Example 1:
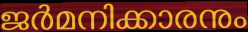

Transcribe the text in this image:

ജർമനിക്കാരനും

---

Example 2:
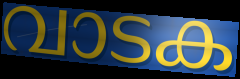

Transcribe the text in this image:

വാടക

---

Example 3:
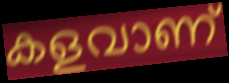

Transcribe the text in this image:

കളവാണ്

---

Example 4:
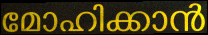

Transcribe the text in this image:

മോഹിക്കാൻ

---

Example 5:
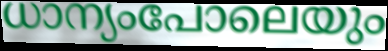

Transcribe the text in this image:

ധാന്യംപോലെയും